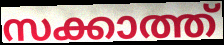
സക്കാത്ത്